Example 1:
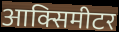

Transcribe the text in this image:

आक्सिमीटर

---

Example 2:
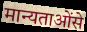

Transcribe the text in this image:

मान्यताओंसे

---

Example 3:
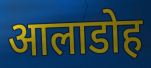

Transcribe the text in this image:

आलाडोह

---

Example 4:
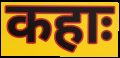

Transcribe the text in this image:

कहाः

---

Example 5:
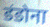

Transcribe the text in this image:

डंडोना